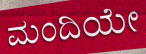
ಮಂದಿಯೇ